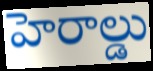
హెరాల్డు